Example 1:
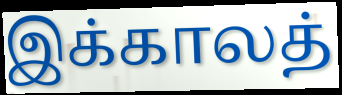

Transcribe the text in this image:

இக்காலத்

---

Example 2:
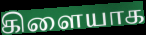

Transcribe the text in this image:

கிளையாக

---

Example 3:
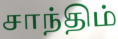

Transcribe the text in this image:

சாந்திம்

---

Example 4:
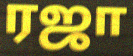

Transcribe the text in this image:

ரஜா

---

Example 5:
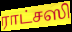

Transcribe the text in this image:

ராட்சஸி